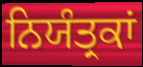
ਨਿਯੰਤ੍ਰਕਾਂ